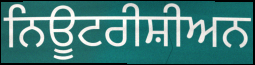
ਨਿਊਟਰੀਸ਼ੀਅਨ